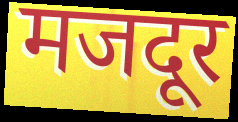
मजदूर